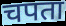
चपता